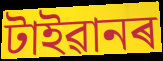
টাইৱানৰ